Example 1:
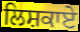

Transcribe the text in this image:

ਲਿਸ਼ਕਾਏ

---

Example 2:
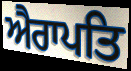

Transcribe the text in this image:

ਐਰਾਪਤਿ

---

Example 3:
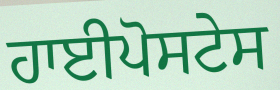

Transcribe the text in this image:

ਹਾਈਪੋਸਟੇਸ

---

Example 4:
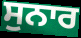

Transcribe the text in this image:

ਸੁਨਾਰ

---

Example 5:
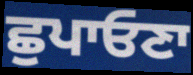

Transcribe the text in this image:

ਛੁਪਾਓਣਾ